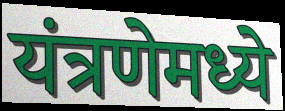
यंत्रणेमध्ये